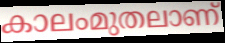
കാലംമുതലാണ്